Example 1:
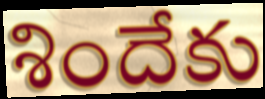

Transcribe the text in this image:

శిందేకు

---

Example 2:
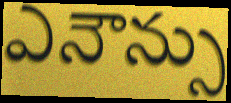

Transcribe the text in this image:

ఎనౌన్సు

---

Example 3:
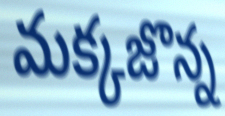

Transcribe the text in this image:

మక్కజొన్న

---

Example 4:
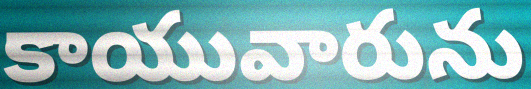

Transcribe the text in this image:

కాయువారును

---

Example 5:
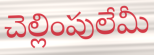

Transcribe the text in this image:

చెల్లింపులేమీ